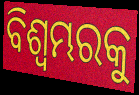
ବିଶ୍ୱମ୍ଭରକୁ